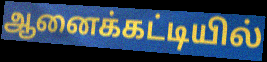
ஆனைக்கட்டியில்